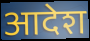
आदेश